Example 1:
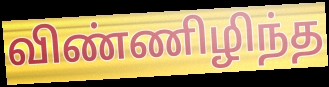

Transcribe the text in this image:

விண்ணிழிந்த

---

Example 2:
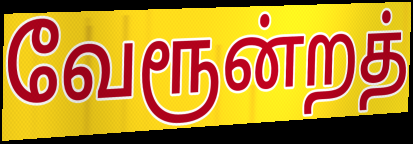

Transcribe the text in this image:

வேரூன்றத்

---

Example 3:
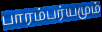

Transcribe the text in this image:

பாரம்பர்யமும்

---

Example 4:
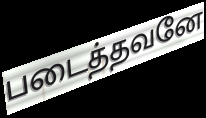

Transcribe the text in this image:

படைத்தவனே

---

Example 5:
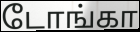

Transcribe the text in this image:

டோங்கா